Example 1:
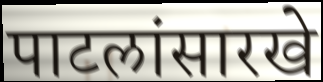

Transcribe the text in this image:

पाटलांसारखे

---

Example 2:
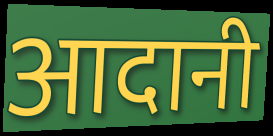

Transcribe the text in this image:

आदानी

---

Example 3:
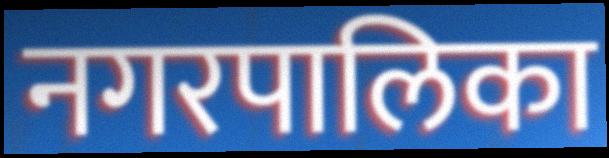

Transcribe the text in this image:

नगरपालिका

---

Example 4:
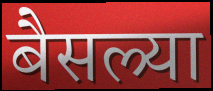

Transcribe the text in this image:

बैसल्या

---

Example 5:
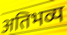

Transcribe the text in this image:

अतिभव्य